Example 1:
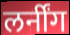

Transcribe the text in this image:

लर्नींग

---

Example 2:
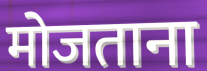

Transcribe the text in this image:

मोजताना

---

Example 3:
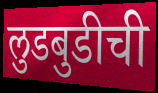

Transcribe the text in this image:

लुडबुडीची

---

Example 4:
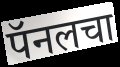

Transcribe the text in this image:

पॅनलचा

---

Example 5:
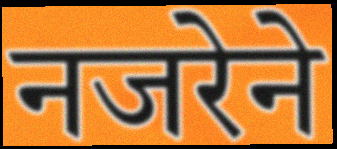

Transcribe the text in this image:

नजरेने